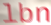
lbn